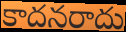
కాదనరాదు